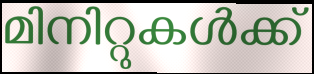
മിനിറ്റുകൾക്ക്